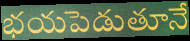
భయపెడుతూనే